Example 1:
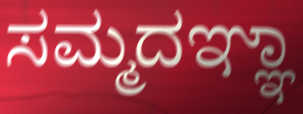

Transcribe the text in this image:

ಸಮ್ಮದಞ್ಞಾ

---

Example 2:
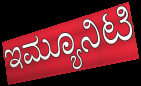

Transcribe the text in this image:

ಇಮ್ಯೂನಿಟಿ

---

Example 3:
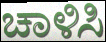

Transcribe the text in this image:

ಚಾಳಿಸಿ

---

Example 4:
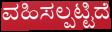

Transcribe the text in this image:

ವಹಿಸಲ್ಪಟ್ಟಿದೆ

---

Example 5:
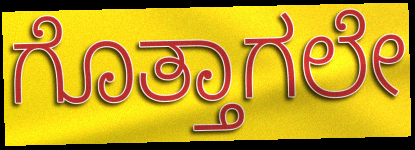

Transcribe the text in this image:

ಗೊತ್ತಾಗಲೇ